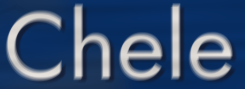
Chele